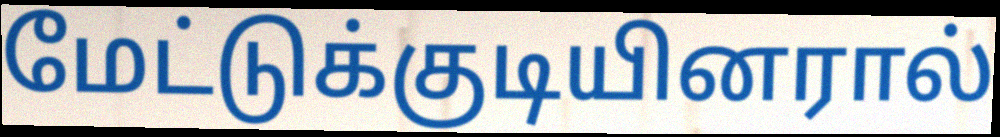
மேட்டுக்குடியினரால்